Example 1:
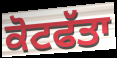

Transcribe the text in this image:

ਕੋਟਫੱਤਾ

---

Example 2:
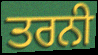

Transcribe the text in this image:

ਤਰਨੀ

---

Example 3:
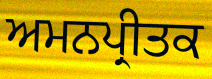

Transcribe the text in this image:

ਅਮਨਪ੍ਰੀਤਕ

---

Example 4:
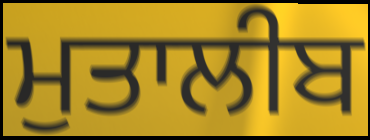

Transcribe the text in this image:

ਮੁਤਾਲੀਬ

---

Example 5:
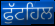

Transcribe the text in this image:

ਫੁੱਟਹਿਲ